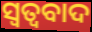
ସ୍ୱତ୍ୱବାଦ